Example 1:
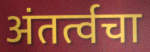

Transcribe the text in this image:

अंतर्त्वचा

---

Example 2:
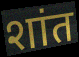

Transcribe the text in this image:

शांत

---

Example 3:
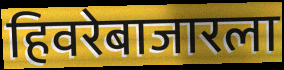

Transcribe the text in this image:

हिवरेबाजारला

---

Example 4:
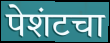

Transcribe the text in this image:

पेशंटचा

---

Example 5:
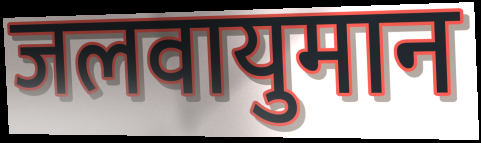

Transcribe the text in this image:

जलवायुमान